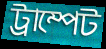
ট্ৰাম্পেট